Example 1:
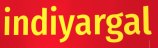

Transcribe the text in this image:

indiyargal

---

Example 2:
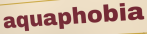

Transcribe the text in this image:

aquaphobia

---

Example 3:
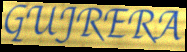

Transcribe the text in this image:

GUJRERA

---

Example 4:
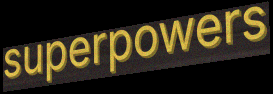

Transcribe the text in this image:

superpowers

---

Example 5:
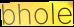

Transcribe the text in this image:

bhole